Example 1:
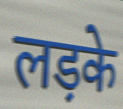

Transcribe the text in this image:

लड़के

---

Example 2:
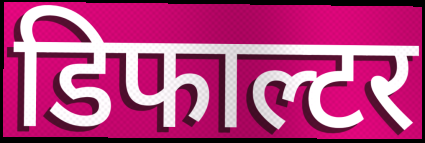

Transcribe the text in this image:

डिफाल्टर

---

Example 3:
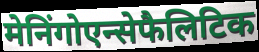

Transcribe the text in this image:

मेनिंगोएन्सेफैलिटिक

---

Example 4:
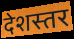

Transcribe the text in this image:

देशस्तर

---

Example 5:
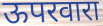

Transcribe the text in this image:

ऊपरवारा